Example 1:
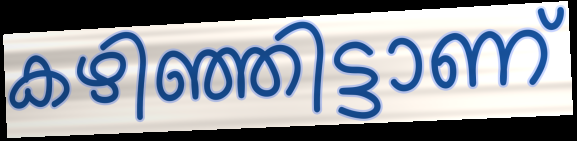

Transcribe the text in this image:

കഴിഞ്ഞിട്ടാണ്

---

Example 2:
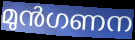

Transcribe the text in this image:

മുൻഗണന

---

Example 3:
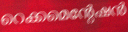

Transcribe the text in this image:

റെക്കമെന്റേഷൻ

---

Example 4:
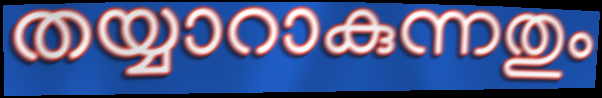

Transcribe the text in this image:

തയ്യാറാകുന്നതും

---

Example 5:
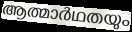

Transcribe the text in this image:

ആത്മാർഥതയും